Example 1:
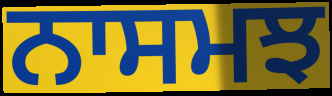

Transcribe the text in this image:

ਨਾਸਮਝ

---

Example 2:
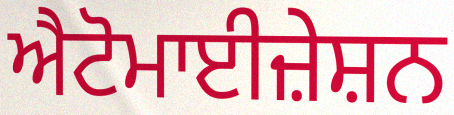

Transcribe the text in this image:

ਐਟੋਮਾਈਜ਼ੇਸ਼ਨ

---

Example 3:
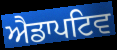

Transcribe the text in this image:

ਐਡਾਪਟਿਵ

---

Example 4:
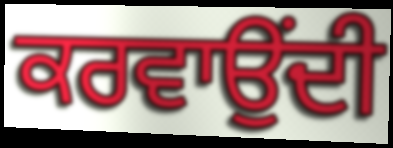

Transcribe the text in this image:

ਕਰਵਾਉਂਦੀ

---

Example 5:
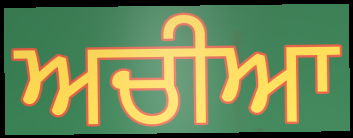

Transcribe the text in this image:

ਅਚੀਆ